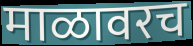
माळावरच